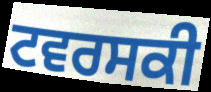
ਟਵਰਸਕੀ